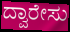
ದ್ವಾರೇಸು